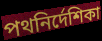
পথনির্দেশিকা